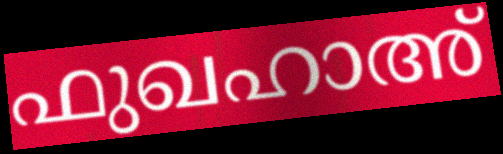
ഫുഖഹാഅ്